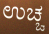
ಉಚ್ಚ